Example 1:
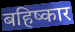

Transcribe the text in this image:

बहिष्‍कार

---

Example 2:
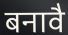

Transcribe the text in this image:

बनावै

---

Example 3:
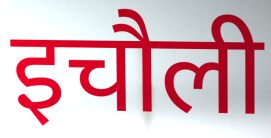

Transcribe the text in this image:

इचौली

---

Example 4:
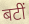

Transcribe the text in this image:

बटीं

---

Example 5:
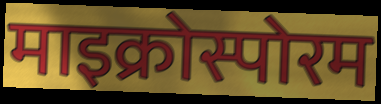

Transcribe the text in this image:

माइक्रोस्पोरम